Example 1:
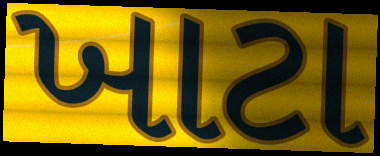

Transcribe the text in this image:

ખાટા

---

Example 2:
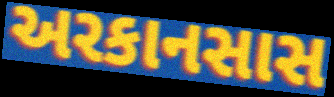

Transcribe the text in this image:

અરકાનસાસ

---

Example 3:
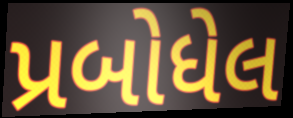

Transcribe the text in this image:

પ્રબોધેલ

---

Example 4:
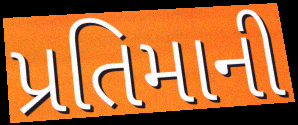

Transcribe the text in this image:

પ્રતિમાની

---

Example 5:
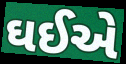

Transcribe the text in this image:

ઘઈએ